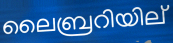
ലൈബ്രറിയില്